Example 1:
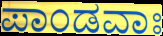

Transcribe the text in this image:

ಪಾಂಡವಾಃ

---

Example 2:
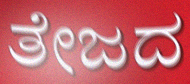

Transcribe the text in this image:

ತೇಜದ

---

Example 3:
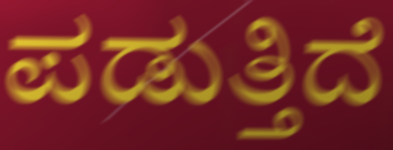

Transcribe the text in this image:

ಪಡುತ್ತಿದೆ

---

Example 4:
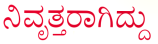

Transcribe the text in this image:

ನಿವೃತ್ತರಾಗಿದ್ದು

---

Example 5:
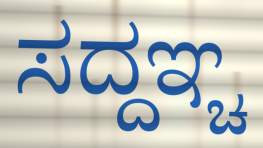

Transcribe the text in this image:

ಸದ್ದಞ್ಚ